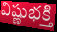
విష్ణుభక్తి